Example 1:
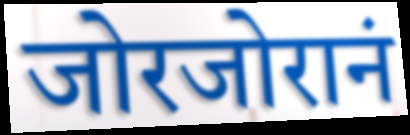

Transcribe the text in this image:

जोरजोरानं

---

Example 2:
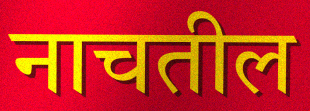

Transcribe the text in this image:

नाचतील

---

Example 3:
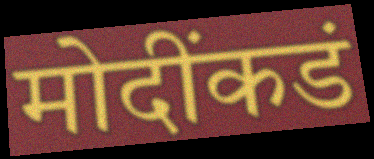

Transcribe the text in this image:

मोदींकडं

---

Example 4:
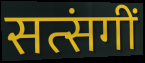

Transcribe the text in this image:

सत्संगीं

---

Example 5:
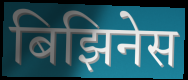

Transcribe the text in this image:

बिझिनेस